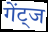
गेंट्ज